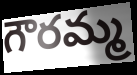
గౌరమ్మ